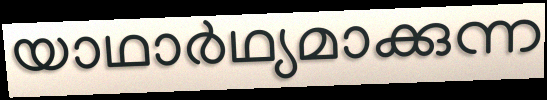
യാഥാർഥ്യമാക്കുന്ന